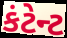
કંટેન્ટ